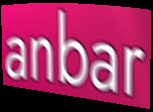
anbar